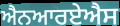
ਐਨਆਰਏਐਸ